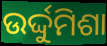
ଉର୍ଦ୍ଦୁମିଶା